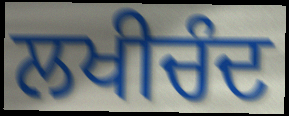
ਲਖੀਚੰਦ